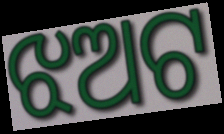
ଝଅଟ